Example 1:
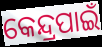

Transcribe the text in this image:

କେନ୍ଦ୍ରପାଇଁ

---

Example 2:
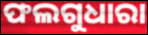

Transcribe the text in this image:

ଫଲଗୁଧାରା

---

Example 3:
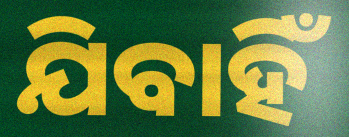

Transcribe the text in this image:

ଯିବାହିଁ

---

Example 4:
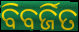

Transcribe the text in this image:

ବିବର୍ଜିତ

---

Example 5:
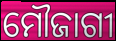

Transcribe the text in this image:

ମୌଜାଗୀ